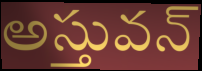
అస్తువన్